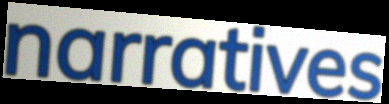
narratives